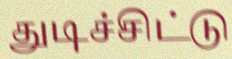
துடிச்சிட்டு